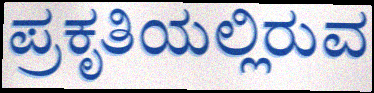
ಪ್ರಕೃತಿಯಲ್ಲಿರುವ